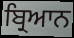
ਬ੍ਰਿਆਨ